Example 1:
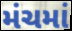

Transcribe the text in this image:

મંચમાં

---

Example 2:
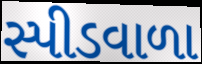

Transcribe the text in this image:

સ્પીડવાળા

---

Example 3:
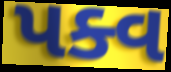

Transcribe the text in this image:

પક્વ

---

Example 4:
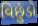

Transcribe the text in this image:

વિછુંડો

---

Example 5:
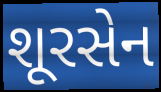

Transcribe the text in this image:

શૂરસેન